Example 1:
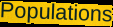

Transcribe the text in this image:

Populations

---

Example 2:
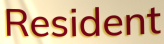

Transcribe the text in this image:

Resident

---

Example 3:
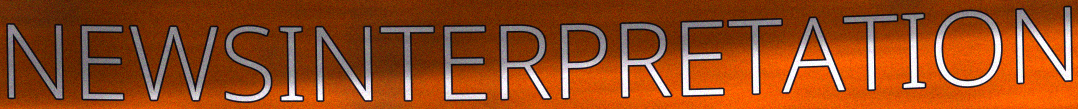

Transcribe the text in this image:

NEWSINTERPRETATION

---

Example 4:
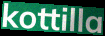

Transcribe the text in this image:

kottilla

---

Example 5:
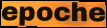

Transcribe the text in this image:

epoche